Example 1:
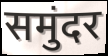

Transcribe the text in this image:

समुंदर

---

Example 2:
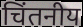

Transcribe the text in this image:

चिंतनीय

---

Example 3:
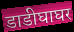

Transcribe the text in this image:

डाडीघाघर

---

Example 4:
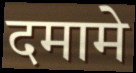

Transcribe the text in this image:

दमामे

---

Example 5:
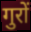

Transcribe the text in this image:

गुरों